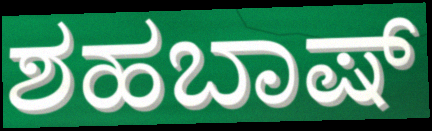
ಶಹಬಾಷ್